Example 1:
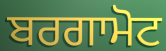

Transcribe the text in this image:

ਬਰਗਾਮੋਟ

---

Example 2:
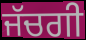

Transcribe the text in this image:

ਜੱਚਗੀ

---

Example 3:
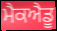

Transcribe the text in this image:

ਮੈਕਐਡੂ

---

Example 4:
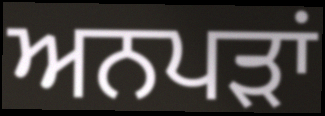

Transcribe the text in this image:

ਅਨਪੜਾਂ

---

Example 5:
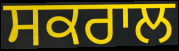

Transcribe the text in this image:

ਸਕਰਾਲ